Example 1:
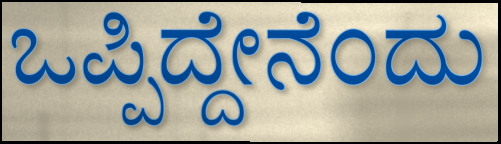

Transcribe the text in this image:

ಒಪ್ಪಿದ್ದೇನೆಂದು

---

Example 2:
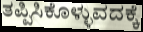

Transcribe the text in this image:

ತಪ್ಪಿಸಿಕೊಳ್ಳುವದಕ್ಕೆ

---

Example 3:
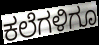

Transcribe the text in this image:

ಕಲೆಗಳಿಗೂ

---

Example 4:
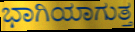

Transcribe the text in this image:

ಭಾಗಿಯಾಗುತ್ತ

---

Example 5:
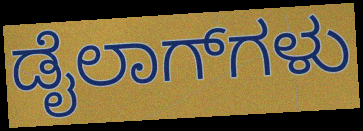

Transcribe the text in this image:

ಡೈಲಾಗ್‌ಗಳು